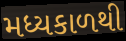
મધ્યકાળથી